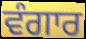
ਵੰਗਾਰ